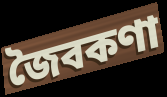
জৈবকণা